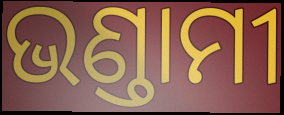
ଭଣ୍ଡାମୀ